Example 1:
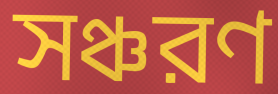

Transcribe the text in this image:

সঞ্চরণ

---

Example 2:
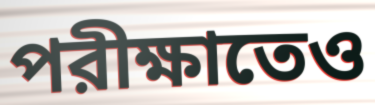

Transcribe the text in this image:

পরীক্ষাতেও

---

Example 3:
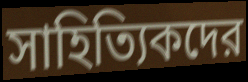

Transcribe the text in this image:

সাহিত্যিকদের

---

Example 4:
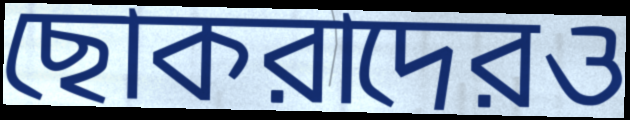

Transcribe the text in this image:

ছোকরাদেরও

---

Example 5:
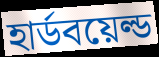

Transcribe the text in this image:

হার্ডবয়েল্ড